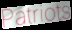
Patriots